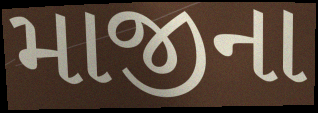
માજીના